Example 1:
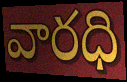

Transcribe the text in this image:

వారధి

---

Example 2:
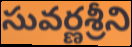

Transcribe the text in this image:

సువర్ణశ్రీని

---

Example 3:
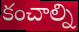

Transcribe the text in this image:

కంచాల్ని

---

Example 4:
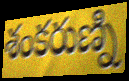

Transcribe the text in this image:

శంకరుణ్ని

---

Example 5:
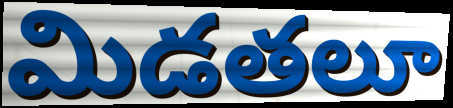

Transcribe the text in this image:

మిడతలూ